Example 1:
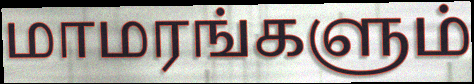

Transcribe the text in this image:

மாமரங்களும்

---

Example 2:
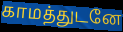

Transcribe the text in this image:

காமத்துடனே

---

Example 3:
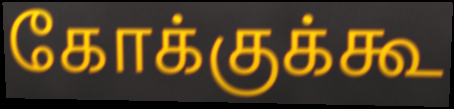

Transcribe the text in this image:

கோக்குக்கூ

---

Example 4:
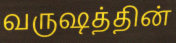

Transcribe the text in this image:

வருஷத்தின்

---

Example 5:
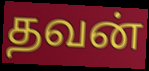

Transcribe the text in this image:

தவன்